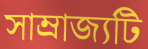
সাম্রাজ্যটি